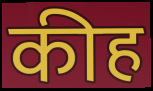
कीह